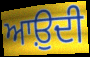
ਆਉ਼ਦੀ